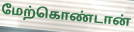
மேற்கொண்டான்